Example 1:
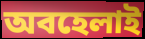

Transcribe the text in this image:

অবহেলাই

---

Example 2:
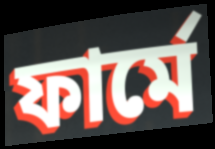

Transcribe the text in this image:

ফার্মে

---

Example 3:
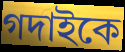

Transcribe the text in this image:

গদাইকে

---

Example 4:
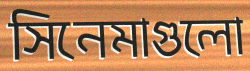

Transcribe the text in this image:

সিনেমাগুলো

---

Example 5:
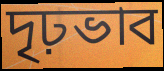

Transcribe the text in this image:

দৃঢ়ভাব